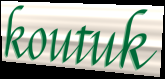
koutuk